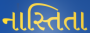
નાસ્તિતા